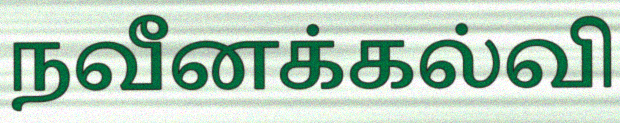
நவீனக்கல்வி